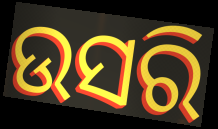
ଉସରି